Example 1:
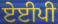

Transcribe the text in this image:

ਏਈਪੀ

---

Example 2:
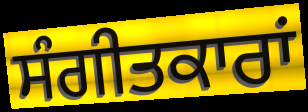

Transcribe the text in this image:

ਸੰਗੀਤਕਾਰਾਂ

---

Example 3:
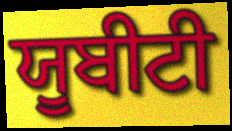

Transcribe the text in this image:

ਯੂਬੀਟੀ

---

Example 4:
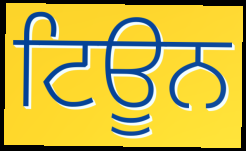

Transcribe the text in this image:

ਟਿਊਨ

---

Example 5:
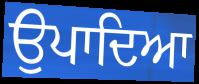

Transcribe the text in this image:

ਉਪਾਦਿਆ